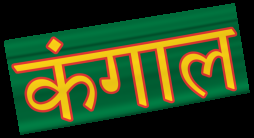
कंगाल